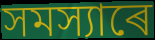
সমস্যাৰে